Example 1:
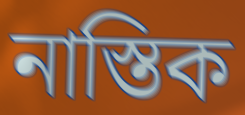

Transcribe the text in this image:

নাস্তিক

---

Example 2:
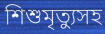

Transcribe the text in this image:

শিশুমৃত্যুসহ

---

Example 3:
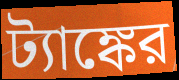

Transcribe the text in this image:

ট্যাঙ্কের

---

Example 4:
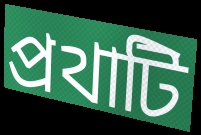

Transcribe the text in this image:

প্রথাটি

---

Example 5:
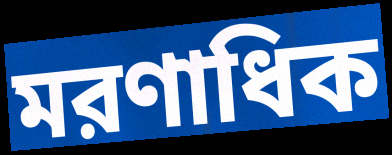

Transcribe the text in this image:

মরণাধিক